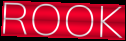
ROOK